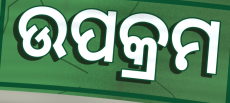
ଉପକ୍ରମ